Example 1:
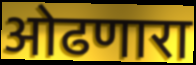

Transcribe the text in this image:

ओढणारा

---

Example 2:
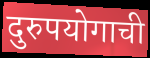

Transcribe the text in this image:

दुरुपयोगाची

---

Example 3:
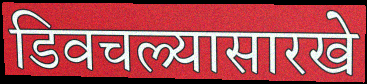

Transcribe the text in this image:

डिवचल्यासारखे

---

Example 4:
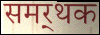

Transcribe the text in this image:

समर्थक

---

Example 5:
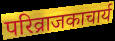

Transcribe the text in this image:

परिव्राजकाचार्य